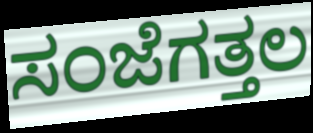
ಸಂಜೆಗತ್ತಲ